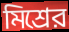
মিশ্রের